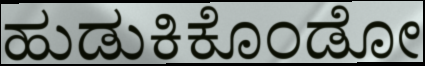
ಹುಡುಕಿಕೊಂಡೋ